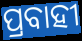
ପ୍ରବାହୀ